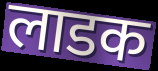
लाडक